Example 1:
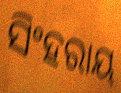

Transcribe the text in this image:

ସିଂହରାୟ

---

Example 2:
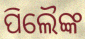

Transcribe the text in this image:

ପିଲୈଙ୍କ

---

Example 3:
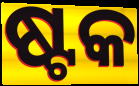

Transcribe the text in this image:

ଷ୍ଟକ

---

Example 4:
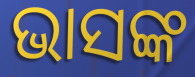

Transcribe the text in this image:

ଭାସଙ୍କ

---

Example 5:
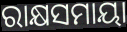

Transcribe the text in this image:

ରାକ୍ଷସମାୟା